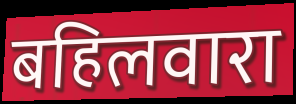
बहिलवारा